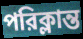
পরিক্লান্ত